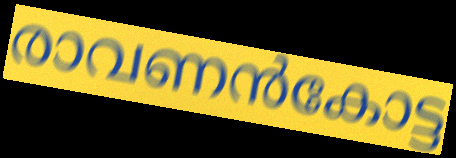
രാവണൻകോട്ട